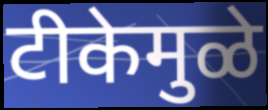
टीकेमुळे